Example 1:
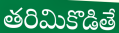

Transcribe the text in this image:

తరిమికొడితే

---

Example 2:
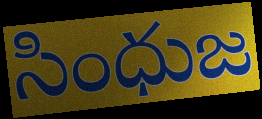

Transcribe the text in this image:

సింధుజ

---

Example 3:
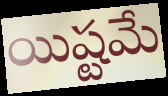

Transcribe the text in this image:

యిష్టమే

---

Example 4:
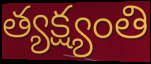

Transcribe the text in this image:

త్యక్ష్యంతి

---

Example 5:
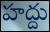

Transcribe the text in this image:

హద్దు